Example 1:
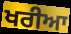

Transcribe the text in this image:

ਖਰੀਆ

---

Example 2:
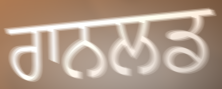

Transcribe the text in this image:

ਰਾਨਲਡ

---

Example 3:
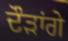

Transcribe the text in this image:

ਦੌੜਾਂਗੇ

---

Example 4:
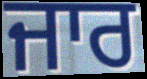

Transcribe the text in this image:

ਜਾਰ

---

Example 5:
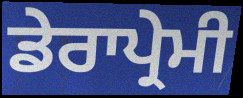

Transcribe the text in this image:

ਡੇਰਾਪ੍ਰੇਮੀ